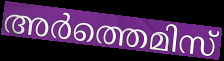
അർത്തെമിസ്